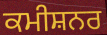
ਕਮੀਸ਼ਨਰ